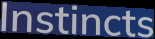
Instincts